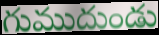
గుముదుండు